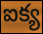
ఐక్య